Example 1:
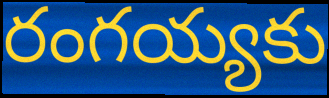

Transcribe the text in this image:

రంగయ్యకు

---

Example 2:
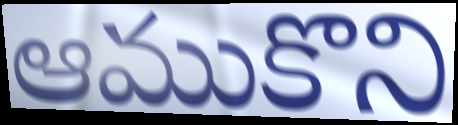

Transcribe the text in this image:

ఆముకొని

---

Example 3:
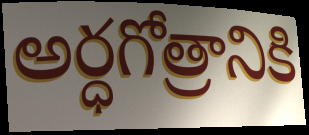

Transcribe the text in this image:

అర్ధగోత్రానికి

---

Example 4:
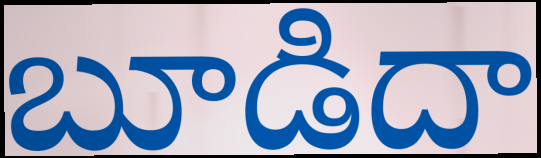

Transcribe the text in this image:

బూడిదా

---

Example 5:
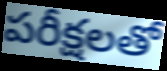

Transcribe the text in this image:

పరీక్షలతో